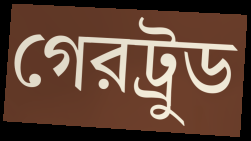
গেরট্রুড